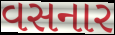
વસનાર